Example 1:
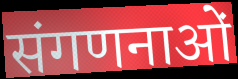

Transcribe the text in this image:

संगणनाओं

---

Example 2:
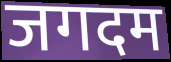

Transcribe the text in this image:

जगदम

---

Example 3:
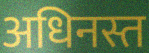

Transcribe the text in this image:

अधिनस्त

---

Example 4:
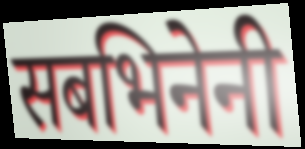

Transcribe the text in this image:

सबभिनेनी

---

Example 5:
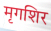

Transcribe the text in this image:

मृगशिर